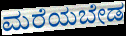
ಮರೆಯಬೇಡ